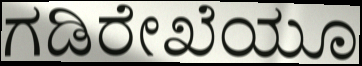
ಗಡಿರೇಖೆಯೂ